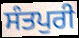
ਸੰਤਪੁਰੀ